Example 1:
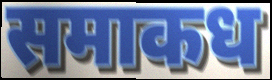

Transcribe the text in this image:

समाकध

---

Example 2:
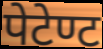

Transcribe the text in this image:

पेटेण्ट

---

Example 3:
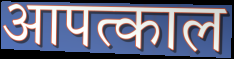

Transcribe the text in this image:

आपत्काल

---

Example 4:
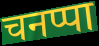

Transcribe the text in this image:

चनप्पा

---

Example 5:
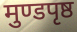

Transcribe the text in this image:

मुण्डपृष्ठ